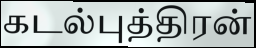
கடல்புத்திரன்